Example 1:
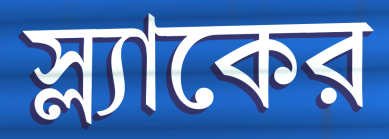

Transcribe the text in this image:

স্ল্যাকের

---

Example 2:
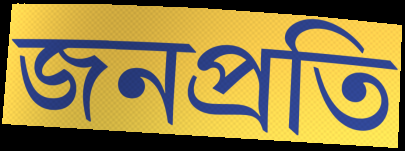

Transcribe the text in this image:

জনপ্রতি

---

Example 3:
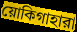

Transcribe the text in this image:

য়োকিগাহারা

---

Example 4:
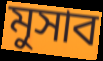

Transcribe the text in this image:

মুসাব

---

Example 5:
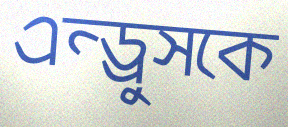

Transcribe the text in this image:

এন্ড্রুসকে